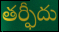
తర్ఫీదు